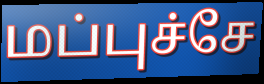
மப்புச்சே